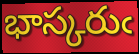
భాస్కరుఁ